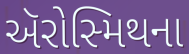
ઍરોસ્મિથના